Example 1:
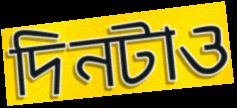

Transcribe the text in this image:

দিনটাও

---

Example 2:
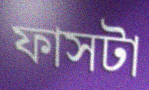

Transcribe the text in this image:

ফাসটা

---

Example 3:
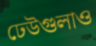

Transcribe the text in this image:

ঢেউগুলাও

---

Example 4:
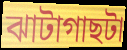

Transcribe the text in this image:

ঝাটাগাছটা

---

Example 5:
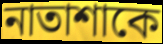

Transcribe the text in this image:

নাতাশাকে